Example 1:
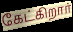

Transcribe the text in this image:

கேட்கிறார்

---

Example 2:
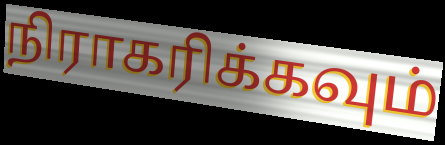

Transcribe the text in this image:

நிராகரிக்கவும்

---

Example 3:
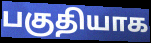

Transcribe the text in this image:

பகுதியாக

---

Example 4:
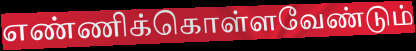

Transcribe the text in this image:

எண்ணிக்கொள்ளவேண்டும்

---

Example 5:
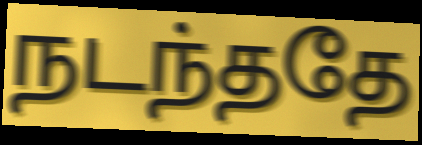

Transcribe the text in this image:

நடந்ததே